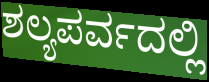
ಶಲ್ಯಪರ್ವದಲ್ಲಿ